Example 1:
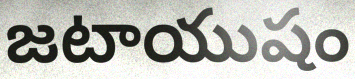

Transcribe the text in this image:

జటాయుషం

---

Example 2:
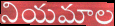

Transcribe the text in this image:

నియమాల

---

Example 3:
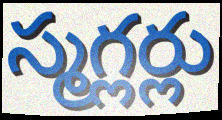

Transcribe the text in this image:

స్మగ్లర్లు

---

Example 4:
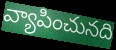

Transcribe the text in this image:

వ్యాపించునది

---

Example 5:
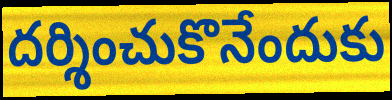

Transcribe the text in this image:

దర్శించుకొనేందుకు